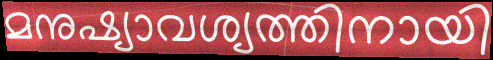
മനുഷ്യാവശ്യത്തിനായി